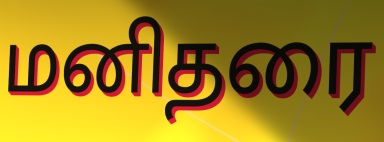
மனிதரை